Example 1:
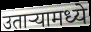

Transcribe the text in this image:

उतार्‍यामध्ये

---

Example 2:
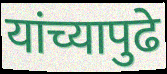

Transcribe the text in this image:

यांच्यापुढे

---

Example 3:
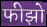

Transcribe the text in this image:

फीझो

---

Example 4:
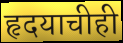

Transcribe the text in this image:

हृदयाचीही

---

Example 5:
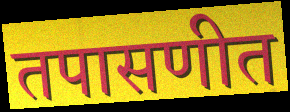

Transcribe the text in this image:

तपासणीत